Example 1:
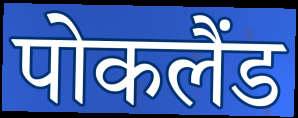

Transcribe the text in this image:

पोकलैंड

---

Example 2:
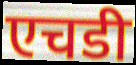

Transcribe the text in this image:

एचडी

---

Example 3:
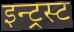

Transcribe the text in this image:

इन्ट्रस्ट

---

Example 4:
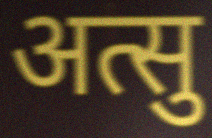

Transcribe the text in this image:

अत्सु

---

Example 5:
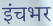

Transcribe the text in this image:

इंचभर